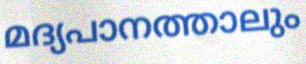
മദ്യപാനത്താലും